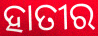
ହାତୀର